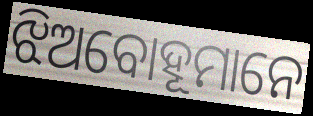
ଝିଅବୋହୂମାନେ